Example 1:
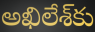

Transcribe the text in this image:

అఖిలేశ్‌కు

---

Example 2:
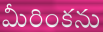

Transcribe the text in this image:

మీరింకను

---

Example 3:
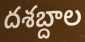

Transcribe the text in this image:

దశబ్దాల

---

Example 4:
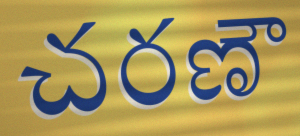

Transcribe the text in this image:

చరణౌ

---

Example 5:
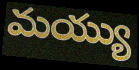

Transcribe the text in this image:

మయ్యు